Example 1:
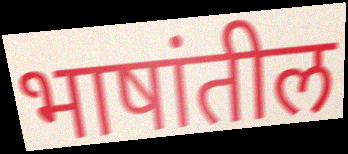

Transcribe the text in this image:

भाषांतील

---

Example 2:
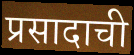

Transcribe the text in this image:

प्रसादाची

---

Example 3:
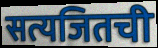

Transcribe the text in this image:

सत्यजितची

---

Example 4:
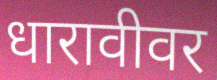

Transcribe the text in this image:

धारावीवर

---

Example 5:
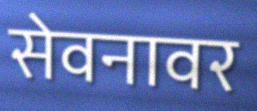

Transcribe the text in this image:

सेवनावर